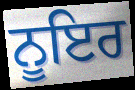
ਨੂਇਰ